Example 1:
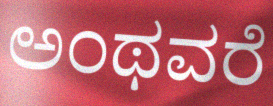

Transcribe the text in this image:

ಅಂಥವರೆ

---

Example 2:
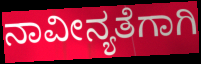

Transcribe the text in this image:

ನಾವೀನ್ಯತೆಗಾಗಿ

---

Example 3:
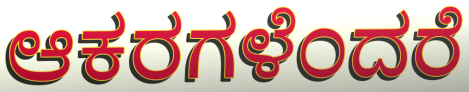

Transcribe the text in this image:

ಆಕರಗಳೆಂದರೆ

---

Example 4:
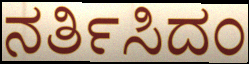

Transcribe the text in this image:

ನರ್ತಿಸಿದಂ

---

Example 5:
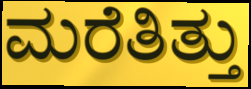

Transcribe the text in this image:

ಮರೆತಿತ್ತು